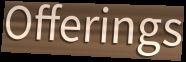
Offerings